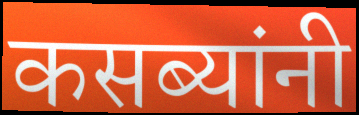
कसब्यांनी